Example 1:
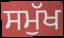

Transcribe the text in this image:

ਸਮੁੱਖ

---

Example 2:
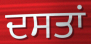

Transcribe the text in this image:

ਦਸਤਾਂ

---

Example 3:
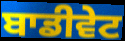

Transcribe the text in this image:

ਬਾਡੀਵੇਟ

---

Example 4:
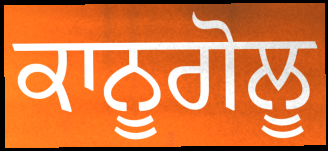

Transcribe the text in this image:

ਕਾਨੂਗੋਲੂ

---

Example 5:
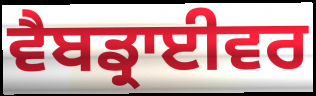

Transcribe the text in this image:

ਵੈਬਡ੍ਰਾਈਵਰ